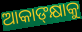
ଆକାଙ୍‍କ୍ଷାକୁ